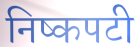
निष्कपटी